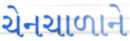
ચેનચાળાને